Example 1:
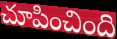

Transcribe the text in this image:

చూపించింది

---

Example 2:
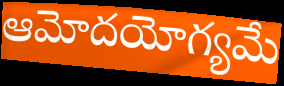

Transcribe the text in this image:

ఆమోదయోగ్యమే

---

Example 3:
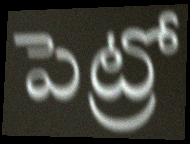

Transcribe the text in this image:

పెట్రో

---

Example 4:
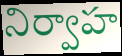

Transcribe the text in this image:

నిర్వాహ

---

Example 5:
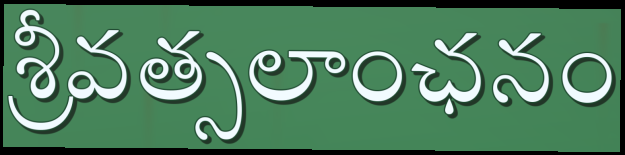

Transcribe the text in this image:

శ్రీవత్సలాంఛనం